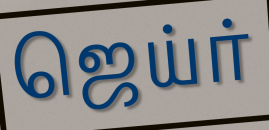
ஜெய்ர்